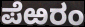
ಪೆಱರಂ